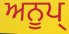
ਅਨੂਪ੍